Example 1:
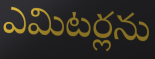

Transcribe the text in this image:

ఎమిటర్లను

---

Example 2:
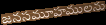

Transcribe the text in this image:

జనసమూహములను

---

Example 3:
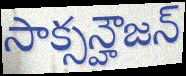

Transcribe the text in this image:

సాక్సన్హౌజన్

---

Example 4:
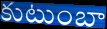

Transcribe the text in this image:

కుటుంబా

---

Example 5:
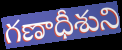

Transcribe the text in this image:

గణాధీశుని